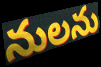
నులను